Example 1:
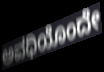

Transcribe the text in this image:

ಅವಧಿಯೊಂದೇ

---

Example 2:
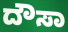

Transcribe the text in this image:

ದೌಸಾ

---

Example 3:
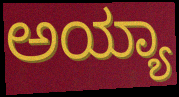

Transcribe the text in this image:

ಅಯ್ಯಾ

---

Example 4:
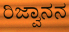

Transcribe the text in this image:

ರಿಜ್ವಾನನ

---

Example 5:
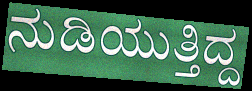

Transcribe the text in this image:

ನುಡಿಯುತ್ತಿದ್ದ